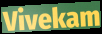
Vivekam